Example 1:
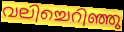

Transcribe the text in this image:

വലിച്ചെറിഞ്ഞു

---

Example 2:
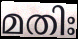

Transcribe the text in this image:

മതിഃ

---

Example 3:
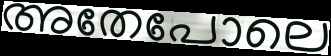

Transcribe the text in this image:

അതേപോലെ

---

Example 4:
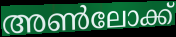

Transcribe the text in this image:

അൺലോക്ക്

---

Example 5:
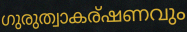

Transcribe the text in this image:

ഗുരുത്വാകര്ഷണവും